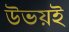
উভয়ই